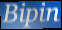
Bipin